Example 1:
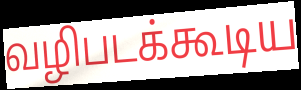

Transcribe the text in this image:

வழிபடக்கூடிய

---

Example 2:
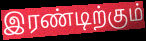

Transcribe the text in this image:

இரண்டிற்கும்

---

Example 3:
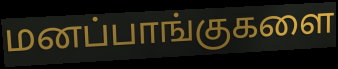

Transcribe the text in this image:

மனப்பாங்குகளை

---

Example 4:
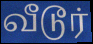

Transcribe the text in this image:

வீடூர்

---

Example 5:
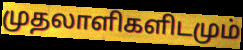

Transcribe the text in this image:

முதலாளிகளிடமும்